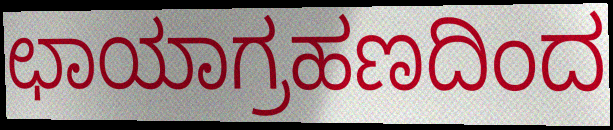
ಛಾಯಾಗ್ರಹಣದಿಂದ